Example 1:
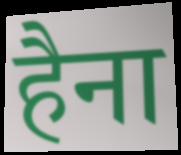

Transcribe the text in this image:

हैना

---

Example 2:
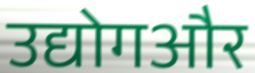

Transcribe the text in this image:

उद्योगऔर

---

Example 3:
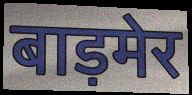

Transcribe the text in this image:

बाड़मेर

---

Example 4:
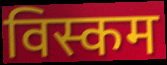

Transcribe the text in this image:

विस्कम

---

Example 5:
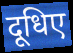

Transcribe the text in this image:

दूधिए